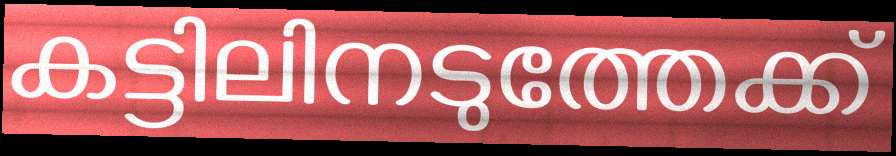
കട്ടിലിനടുത്തേക്ക്